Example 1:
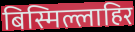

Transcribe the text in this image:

बिस्मिल्लाहिर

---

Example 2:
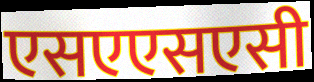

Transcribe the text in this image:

एसएएसएसी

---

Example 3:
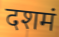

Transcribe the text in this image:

दशमं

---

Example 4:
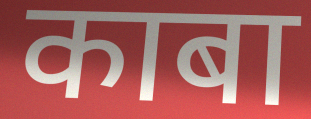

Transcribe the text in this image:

काबा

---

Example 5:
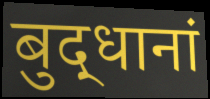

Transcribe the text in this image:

बुद्धानां